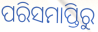
ପରିସମାପ୍ତିରୁ